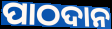
ପାଠଦାନ